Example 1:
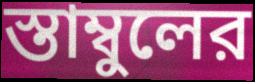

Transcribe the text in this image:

স্তাম্বুলের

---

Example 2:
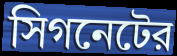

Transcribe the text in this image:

সিগনেটের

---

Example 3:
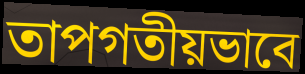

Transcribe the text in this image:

তাপগতীয়ভাবে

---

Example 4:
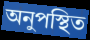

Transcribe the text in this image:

অনুপস্থিত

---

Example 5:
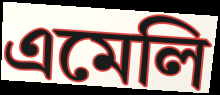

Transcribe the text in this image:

এমেলি